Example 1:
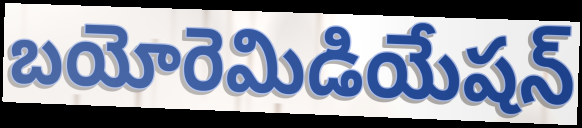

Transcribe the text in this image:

బయోరెమిడియేషన్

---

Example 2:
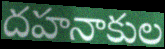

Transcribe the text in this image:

దహనాకుల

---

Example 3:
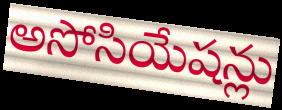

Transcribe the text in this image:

అసోసియేషన్లు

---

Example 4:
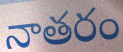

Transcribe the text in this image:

నాతరం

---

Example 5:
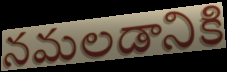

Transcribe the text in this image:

నమలడానికి